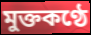
মুক্তকণ্ঠে